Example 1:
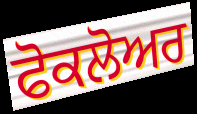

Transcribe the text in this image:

ਫੋਕਲੋਅਰ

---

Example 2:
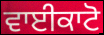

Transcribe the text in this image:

ਵਾਈਕਾਟੋ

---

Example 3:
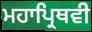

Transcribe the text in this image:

ਮਹਾਪ੍ਰਿਥਵੀ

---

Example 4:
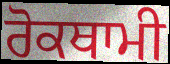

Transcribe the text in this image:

ਰੋਕਥਾਮੀ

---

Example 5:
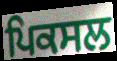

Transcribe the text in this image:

ਪਿਕਸਲ